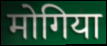
मोगिया